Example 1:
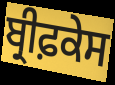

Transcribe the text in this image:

ਬ੍ਰੀਫ਼ਕੇਸ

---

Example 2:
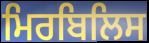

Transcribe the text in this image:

ਮਿਰਬਿਲਿਸ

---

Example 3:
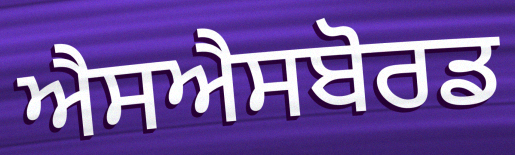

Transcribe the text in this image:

ਐਸਐਸਬੋਰਡ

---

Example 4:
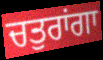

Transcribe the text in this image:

ਚਤੁਰਾਂਗਾ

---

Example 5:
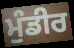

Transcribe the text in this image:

ਮੁੰਡੀਰ